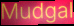
Mudgal